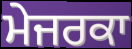
ਮੇਜਰਕਾ